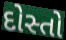
દોસ્તો